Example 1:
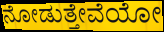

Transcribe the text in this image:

ನೋಡುತ್ತೇವೆಯೋ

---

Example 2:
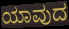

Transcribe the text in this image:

ಯಾವುದ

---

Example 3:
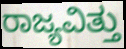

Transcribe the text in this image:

ರಾಜ್ಯವಿತ್ತು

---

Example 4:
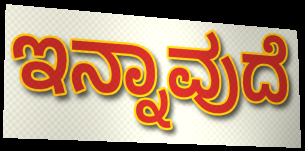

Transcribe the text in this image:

ಇನ್ನಾವುದೆ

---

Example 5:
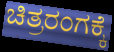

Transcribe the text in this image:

ಚಿತ್ರರಂಗಕ್ಕೆ